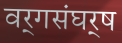
वर्गसंघर्ष